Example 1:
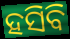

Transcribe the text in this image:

ହସିବି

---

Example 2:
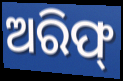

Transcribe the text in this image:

ଅରିଫ୍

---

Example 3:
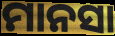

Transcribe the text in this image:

ମାନସା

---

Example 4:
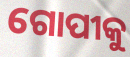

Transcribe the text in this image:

ଗୋପୀକୁ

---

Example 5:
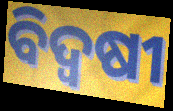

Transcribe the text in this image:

ବିଦ୍ୱଷୀ